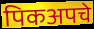
पिकअपचे